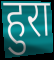
हुरा